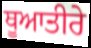
ਥੂਆਤੀਰੇ